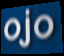
ojo